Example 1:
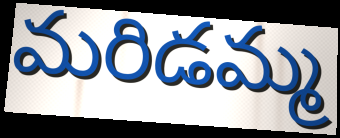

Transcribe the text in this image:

మరిడమ్మ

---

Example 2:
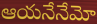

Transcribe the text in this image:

ఆయనేనేమో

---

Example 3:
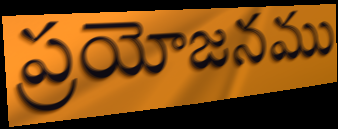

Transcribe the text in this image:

ప్రయోజనము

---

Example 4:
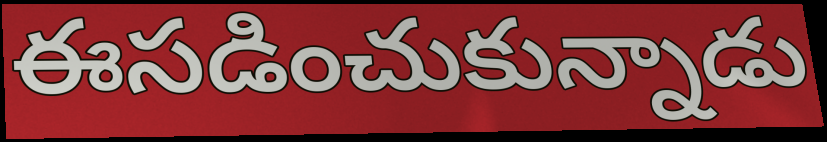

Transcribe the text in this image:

ఈసడించుకున్నాడు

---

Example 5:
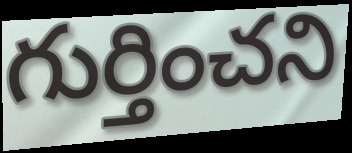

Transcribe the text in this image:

గుర్తించని